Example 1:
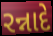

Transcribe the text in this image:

રન્નાદે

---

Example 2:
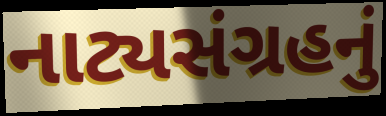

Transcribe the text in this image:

નાટ્યસંગ્રહનું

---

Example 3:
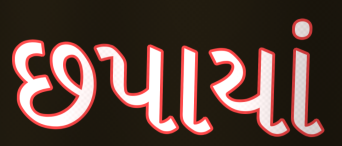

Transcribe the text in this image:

છપાયાં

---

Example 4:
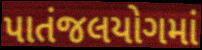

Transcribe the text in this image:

પાતંજલયોગમાં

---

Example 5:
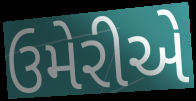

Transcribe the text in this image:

ઉમેરીએ